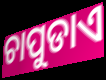
ଚାପୁଡାଏ